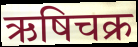
ऋषिचक्र